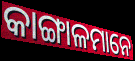
କାଙ୍ଗାଳମାନେ